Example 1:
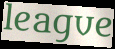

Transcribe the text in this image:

league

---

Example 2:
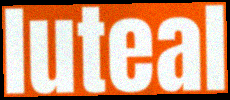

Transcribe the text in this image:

luteal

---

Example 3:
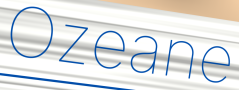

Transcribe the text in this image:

Ozeane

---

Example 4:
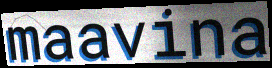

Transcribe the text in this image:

maavina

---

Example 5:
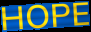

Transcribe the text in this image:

HOPE